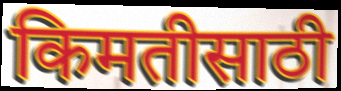
किमतीसाठी